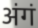
अंगं